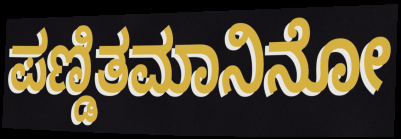
ಪಣ್ಡಿತಮಾನಿನೋ